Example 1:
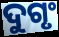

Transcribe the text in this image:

ଦୁଗୃଂ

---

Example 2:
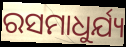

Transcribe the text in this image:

ରସମାଧୁର୍ଯ୍ୟ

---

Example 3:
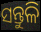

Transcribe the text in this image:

ସନ୍ତୁଳି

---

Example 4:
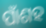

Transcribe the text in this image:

ପାଁଶହ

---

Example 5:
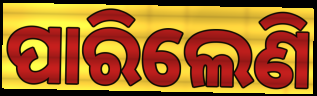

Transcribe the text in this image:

ପାରିଲେଣି